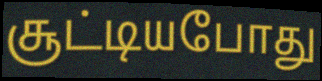
சூட்டியபோது